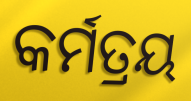
କର୍ମତ୍ରୟ